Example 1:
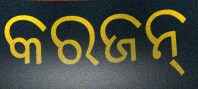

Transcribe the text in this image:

କରଜନ୍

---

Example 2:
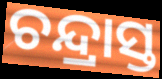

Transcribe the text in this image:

ଚନ୍ଦ୍ରାସ୍ତ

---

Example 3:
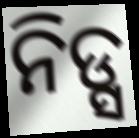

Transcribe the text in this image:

ନିଡ୍ସ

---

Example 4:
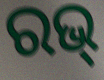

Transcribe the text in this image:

ରଭ୍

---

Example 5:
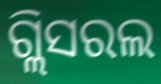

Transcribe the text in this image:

ଗ୍ଲିସରଲ